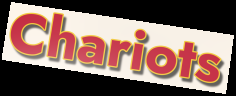
Chariots